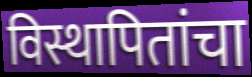
विस्थापितांचा